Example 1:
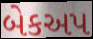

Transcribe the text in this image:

બેકઅપ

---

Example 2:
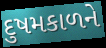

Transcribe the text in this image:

દુષમકાળને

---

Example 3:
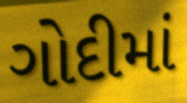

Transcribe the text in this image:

ગોદીમાં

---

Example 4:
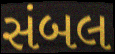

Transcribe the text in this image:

સંબલ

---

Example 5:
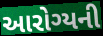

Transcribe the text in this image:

આરોગ્યની